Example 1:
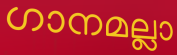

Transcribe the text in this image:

ഗാനമല്ലാ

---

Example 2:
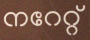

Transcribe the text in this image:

നറേറ്റ്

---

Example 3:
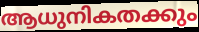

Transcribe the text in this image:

ആധുനികതക്കും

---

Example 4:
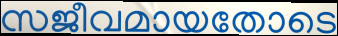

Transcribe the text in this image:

സജീവമായതോടെ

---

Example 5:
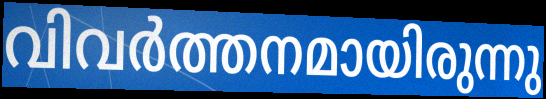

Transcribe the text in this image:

വിവർത്തനമായിരുന്നു